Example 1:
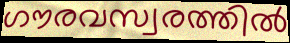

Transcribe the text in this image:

ഗൗരവസ്വരത്തിൽ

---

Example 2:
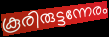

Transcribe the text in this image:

കൂരിരുട്ടന്നേരം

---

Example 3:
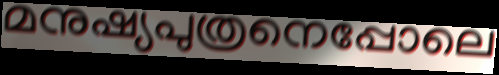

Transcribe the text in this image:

മനുഷ്യപുത്രനെപ്പോലെ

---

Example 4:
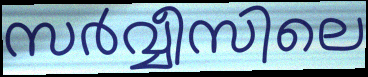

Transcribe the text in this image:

സർവ്വീസിലെ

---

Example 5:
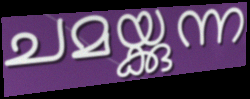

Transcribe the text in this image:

ചമയ്ക്കുന്ന